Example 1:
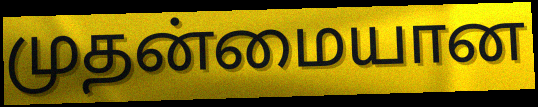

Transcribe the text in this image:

முதன்மையான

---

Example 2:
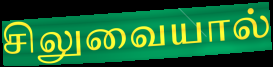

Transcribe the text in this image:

சிலுவையால்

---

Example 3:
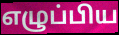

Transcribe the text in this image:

எழுப்பிய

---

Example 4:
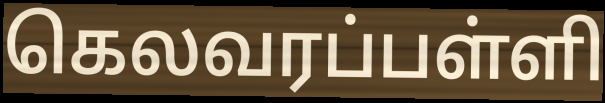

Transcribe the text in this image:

கெலவரப்பள்ளி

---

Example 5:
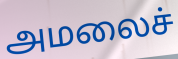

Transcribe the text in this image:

அமலைச்